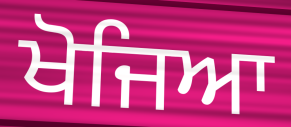
ਖੋਜਿਆ